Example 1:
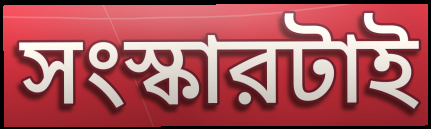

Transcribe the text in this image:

সংস্কারটাই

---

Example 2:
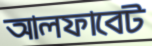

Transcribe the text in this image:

আলফাবেট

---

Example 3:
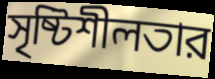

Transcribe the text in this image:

সৃষ্টিশীলতার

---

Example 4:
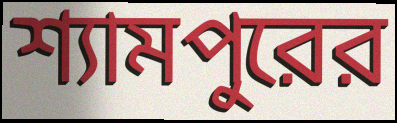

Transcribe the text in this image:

শ্যামপুরের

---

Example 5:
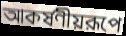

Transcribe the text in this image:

আকর্ষণীয়রূপে